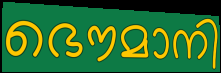
ഭൌമാനി